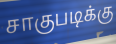
சாகுபடிக்கு